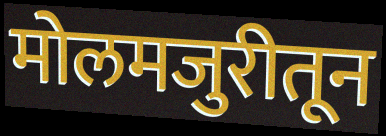
मोलमजुरीतून